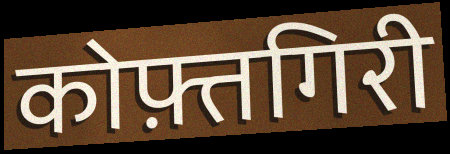
कोफ़्तगिरी